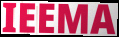
IEEMA